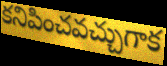
కనిపించవచ్చుగాక